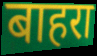
बाहरा